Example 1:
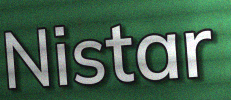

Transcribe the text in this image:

Nistar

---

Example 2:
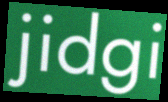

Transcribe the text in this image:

jidgi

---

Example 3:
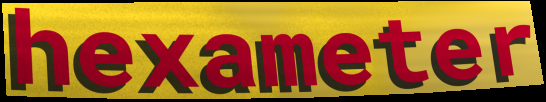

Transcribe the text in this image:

hexameter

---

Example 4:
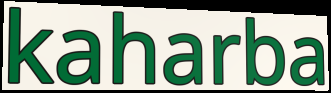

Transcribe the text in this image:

kaharba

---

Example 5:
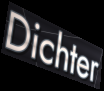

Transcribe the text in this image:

Dichter